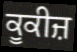
ਕੂਕੀਜ਼